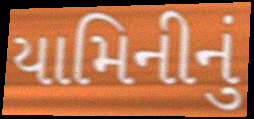
યામિનીનું